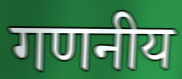
गणनीय